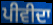
ਪੀਵੀਦਾ